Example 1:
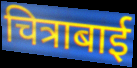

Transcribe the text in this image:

चित्राबाई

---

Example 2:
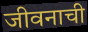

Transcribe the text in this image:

जीवनाची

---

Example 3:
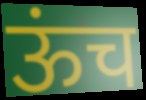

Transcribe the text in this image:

ऊंच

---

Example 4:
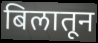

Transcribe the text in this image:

बिलातून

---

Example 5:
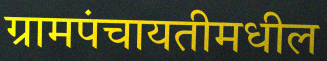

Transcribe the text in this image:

ग्रामपंचायतीमधील